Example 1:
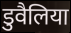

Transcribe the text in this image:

डुवैलिया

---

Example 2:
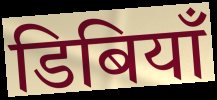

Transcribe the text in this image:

डिबियाँ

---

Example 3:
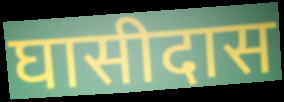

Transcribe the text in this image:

घासीदास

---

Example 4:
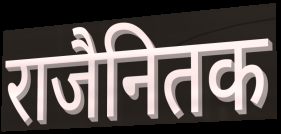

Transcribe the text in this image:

राजैनितक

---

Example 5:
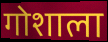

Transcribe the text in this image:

गोशाला